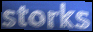
storks